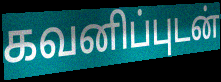
கவனிப்புடன்